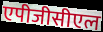
एपीजीसीएल